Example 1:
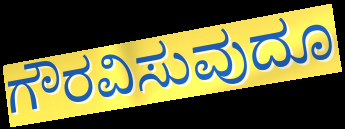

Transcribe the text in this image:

ಗೌರವಿಸುವುದೂ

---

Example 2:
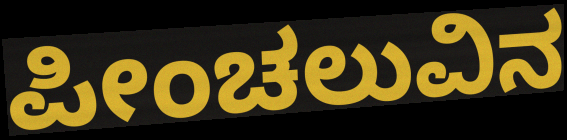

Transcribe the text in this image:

ಪೀಂಚಲುವಿನ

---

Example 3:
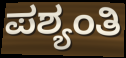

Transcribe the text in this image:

ಪಶ್ಯಂತಿ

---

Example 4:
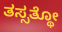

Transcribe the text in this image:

ತಸ್ಸತ್ಥೋ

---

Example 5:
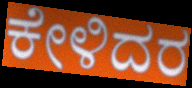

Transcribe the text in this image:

ಕೇಳಿದರ